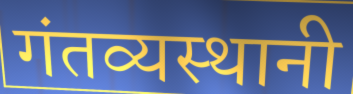
गंतव्यस्थानी